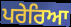
ਪਰੇਰਿਆ